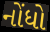
નોંધો